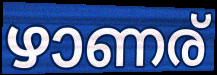
ഴാണര്